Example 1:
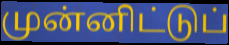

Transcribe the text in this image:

முன்னிட்டுப்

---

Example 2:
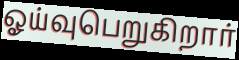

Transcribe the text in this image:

ஓய்வுபெறுகிறார்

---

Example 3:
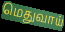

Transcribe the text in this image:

மெதுவாய்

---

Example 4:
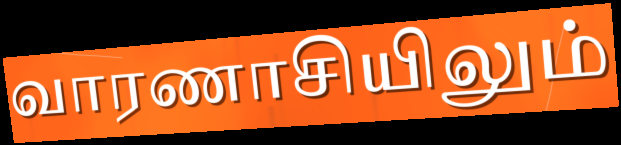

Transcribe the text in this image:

வாரணாசியிலும்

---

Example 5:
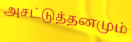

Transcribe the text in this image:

அசட்டுத்தனமும்